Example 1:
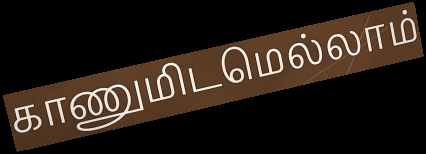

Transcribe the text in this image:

காணுமிடமெல்லாம்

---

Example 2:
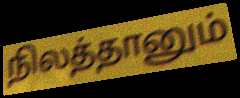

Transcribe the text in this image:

நிலத்தானும்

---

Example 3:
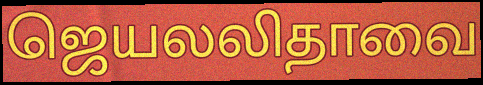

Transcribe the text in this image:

ஜெயலலிதாவை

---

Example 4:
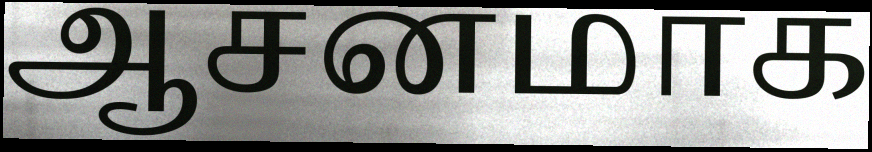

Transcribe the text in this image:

ஆசனமாக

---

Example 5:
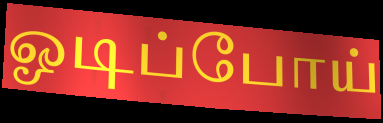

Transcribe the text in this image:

ஓடிப்போய்